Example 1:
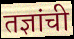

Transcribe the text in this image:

तज्ञांची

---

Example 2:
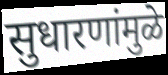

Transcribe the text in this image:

सुधारणांमुळे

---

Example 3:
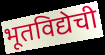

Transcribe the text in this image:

भूतविद्येची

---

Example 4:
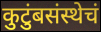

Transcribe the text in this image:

कुटुंबसंस्थेचं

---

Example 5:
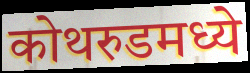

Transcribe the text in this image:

कोथरुडमध्ये